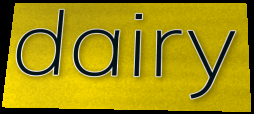
dairy